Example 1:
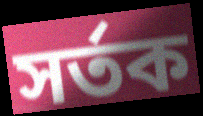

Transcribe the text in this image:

সর্তক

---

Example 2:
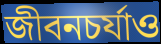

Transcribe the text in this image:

জীবনচর্যাও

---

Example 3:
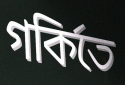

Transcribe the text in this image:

গর্কিতে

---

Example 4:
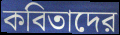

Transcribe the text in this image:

কবিতাদের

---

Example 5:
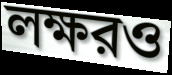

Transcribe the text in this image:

লক্ষরও